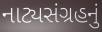
નાટ્યસંગ્રહનું